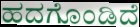
ಹದಗೊಂಡಿದೆ